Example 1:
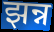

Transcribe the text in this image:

झन्न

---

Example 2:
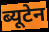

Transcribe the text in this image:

ब्यूटेन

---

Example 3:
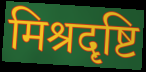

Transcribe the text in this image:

मिश्रदृष्टि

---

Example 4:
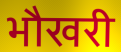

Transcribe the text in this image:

भौखरी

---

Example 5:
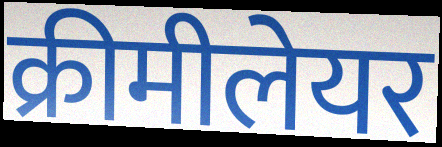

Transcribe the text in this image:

क्रीमीलेयर